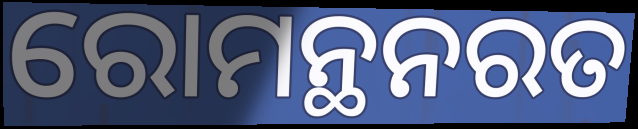
ରୋମନ୍ଥନରତ